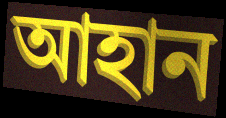
আহান